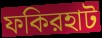
ফকিরহাট